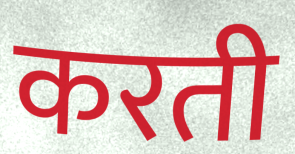
करती